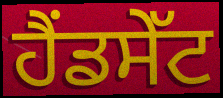
ਹੈਂਡਸੇੱਟ